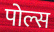
पोल्‍स